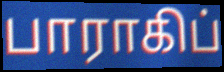
பாராகிப்